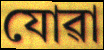
যোৱা